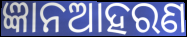
ଜ୍ଞାନଆହରଣ